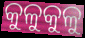
କୁଳୁକୁଳୁ